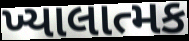
ખ્યાલાત્મક